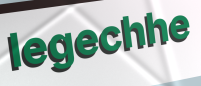
legechhe